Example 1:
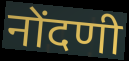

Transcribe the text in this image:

नोंदणी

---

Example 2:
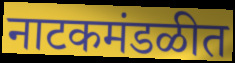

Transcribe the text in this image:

नाटकमंडळीत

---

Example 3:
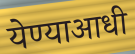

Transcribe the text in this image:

येण्याआधी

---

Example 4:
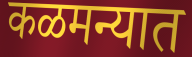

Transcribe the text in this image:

कळमन्यात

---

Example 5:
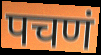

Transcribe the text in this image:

पचणं